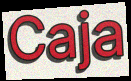
Caja